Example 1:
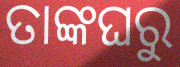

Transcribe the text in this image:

ତାଙ୍କଘରୁ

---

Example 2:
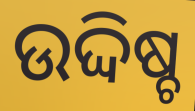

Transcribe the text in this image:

ଉଦ୍ଦିଷ୍ଚ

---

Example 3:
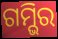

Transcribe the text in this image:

ଗମ୍ଭିର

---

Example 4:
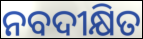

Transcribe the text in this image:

ନବଦୀକ୍ଷିତ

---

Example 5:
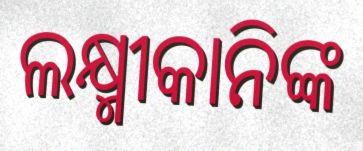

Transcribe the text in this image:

ଲକ୍ଷ୍ମୀକାନିଙ୍କ